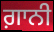
ਗ਼ਾਨੀ